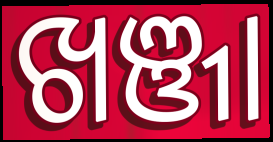
ଖଞ୍ଜା